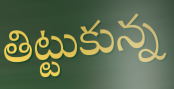
తిట్టుకున్న